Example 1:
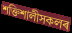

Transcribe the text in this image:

শক্তিশালীসকলৰ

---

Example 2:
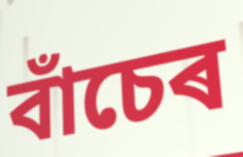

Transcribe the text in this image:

বাঁচেৰ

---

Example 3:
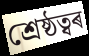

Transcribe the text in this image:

শ্ৰেষ্ঠত্বৰ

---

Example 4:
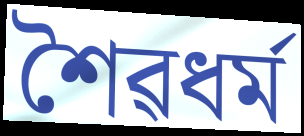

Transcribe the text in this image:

শৈৱধৰ্ম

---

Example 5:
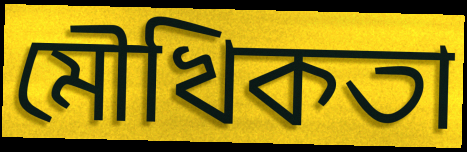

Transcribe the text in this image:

মৌখিকতা